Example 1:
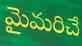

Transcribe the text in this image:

మైమరిచే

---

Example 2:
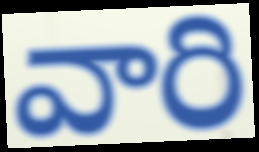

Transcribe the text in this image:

వారి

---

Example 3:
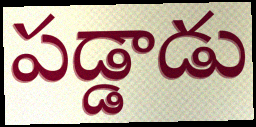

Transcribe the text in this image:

పడ్డాడు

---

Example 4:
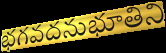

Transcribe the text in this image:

భగవదనుభూతిని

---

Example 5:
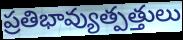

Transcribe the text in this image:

ప్రతిభావ్యుత్పత్తులు